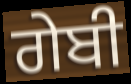
ਗੇਬੀ